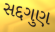
સદ્દગુણ